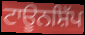
ਟਾਊਨਸ਼ਿੱਪ